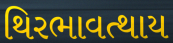
થિરભાવત્થાય